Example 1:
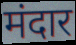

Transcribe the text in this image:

मंदार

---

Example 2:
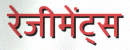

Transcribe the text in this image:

रेजीमेंट्स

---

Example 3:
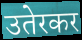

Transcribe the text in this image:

उतेरकर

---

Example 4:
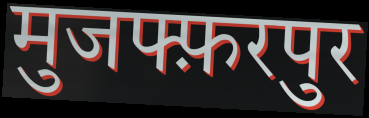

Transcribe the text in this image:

मुजफ्फ़रपुर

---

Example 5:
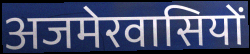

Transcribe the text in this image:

अजमेरवासियों